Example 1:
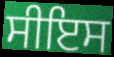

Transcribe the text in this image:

ਸੀਇਸ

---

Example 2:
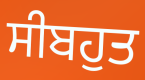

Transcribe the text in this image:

ਸੀਬਹੁਤ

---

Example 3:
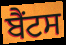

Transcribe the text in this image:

ਬੈਂਟਸ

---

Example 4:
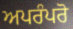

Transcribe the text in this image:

ਅਪਰੰਪਰੋ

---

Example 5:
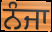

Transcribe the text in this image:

ਨੰਜਾ